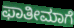
ಫಾತೀಮಾಗೆ